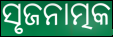
ସୃଜନାତ୍ମକ